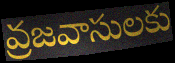
వ్రజవాసులకు